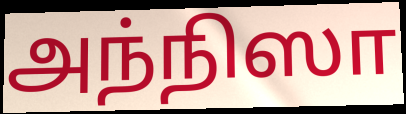
அந்நிஸா